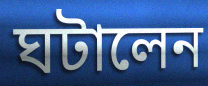
ঘটালেন